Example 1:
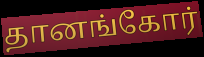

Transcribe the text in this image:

தானங்கோர்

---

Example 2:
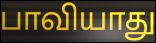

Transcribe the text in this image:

பாவியாது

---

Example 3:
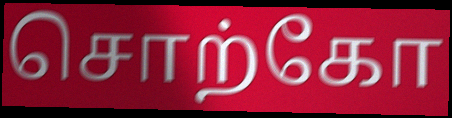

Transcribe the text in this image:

சொற்கோ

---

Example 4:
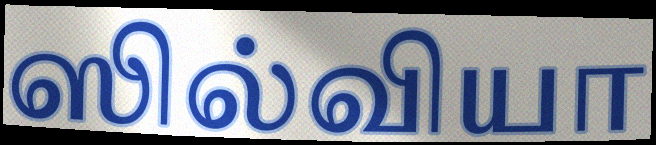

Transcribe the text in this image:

ஸில்வியா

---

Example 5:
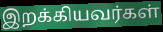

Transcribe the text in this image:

இறக்கியவர்கள்